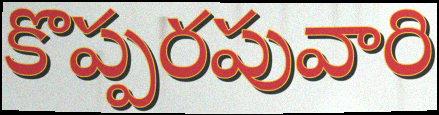
కొప్పరపువారి